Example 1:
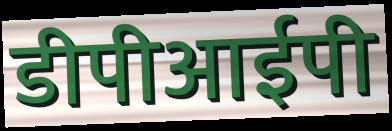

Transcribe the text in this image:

डीपीआईपी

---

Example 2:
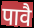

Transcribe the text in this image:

पावै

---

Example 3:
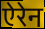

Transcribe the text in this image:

ऐरेन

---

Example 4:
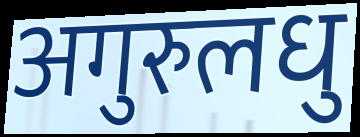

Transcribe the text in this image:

अगुरुलधु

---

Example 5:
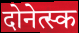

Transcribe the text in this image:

दोनेत्स्क